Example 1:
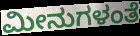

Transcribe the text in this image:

ಮೀನುಗಳಂತೆ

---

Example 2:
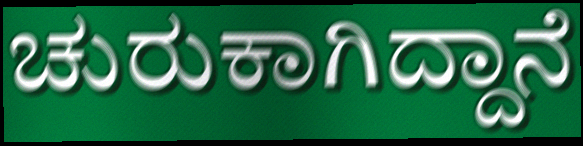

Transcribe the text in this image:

ಚುರುಕಾಗಿದ್ದಾನೆ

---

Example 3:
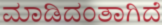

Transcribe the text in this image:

ಮಾಡಿದಂತಾಗಿದೆ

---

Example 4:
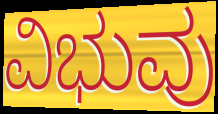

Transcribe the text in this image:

ವಿಭುವು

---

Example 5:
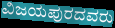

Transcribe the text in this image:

ವಿಜಯಪುರದವರು